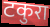
टकुरा